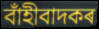
বাঁহীবাদকৰ